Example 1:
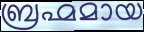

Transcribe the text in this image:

ബ്രഹ്മമായ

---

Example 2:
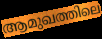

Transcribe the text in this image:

ആമുഖത്തിലെ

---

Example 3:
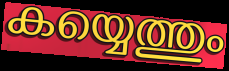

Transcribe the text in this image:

കയ്യെത്തും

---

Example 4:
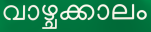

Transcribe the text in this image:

വാഴ്ചക്കാലം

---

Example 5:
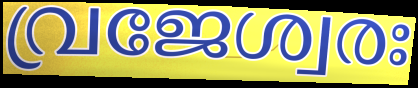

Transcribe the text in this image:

വ്രജേശ്വരഃ